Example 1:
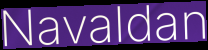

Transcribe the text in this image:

Navaldan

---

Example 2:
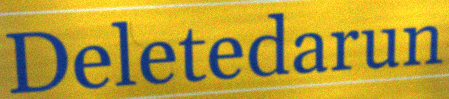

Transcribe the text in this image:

Deletedarun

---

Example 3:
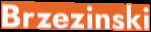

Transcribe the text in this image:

Brzezinski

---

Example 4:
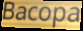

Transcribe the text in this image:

Bacopa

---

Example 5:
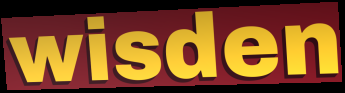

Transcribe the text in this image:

wisden